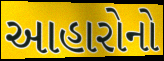
આહારોનો